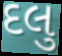
દલુ